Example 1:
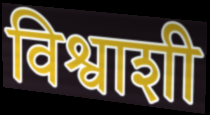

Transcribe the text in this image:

विश्वाशी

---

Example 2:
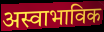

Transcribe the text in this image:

अस्वाभाविक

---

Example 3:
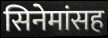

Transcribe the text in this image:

सिनेमांसह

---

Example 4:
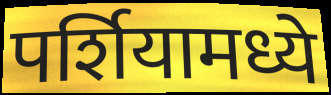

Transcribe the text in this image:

पर्शियामध्ये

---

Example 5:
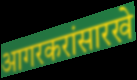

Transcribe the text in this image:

आगरकरांसारखे